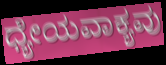
ಧ್ಯೇಯವಾಕ್ಯವು